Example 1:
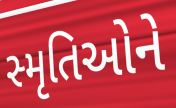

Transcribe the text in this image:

સ્મૃતિઓને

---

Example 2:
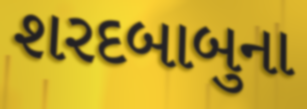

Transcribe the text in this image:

શરદબાબુના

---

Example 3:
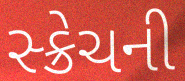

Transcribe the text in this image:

સ્ક્રેચની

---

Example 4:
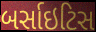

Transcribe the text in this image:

બર્સાઇટિસ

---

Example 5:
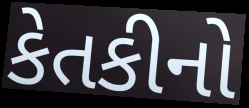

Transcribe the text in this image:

કેતકીનો